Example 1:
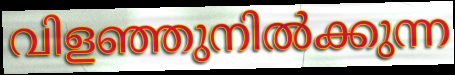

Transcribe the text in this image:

വിളഞ്ഞുനിൽക്കുന്ന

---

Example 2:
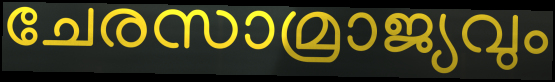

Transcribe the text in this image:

ചേരസാമ്രാജ്യവും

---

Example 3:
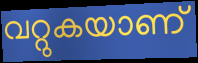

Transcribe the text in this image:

വറ്റുകയാണ്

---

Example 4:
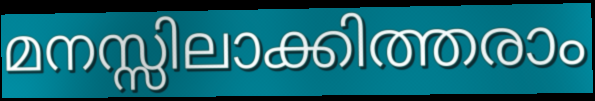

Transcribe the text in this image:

മനസ്സിലാക്കിത്തരാം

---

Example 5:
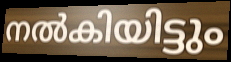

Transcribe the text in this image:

നൽകിയിട്ടും